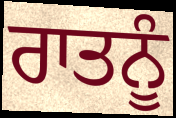
ਰਾਤਨੂੰ